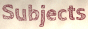
Subjects